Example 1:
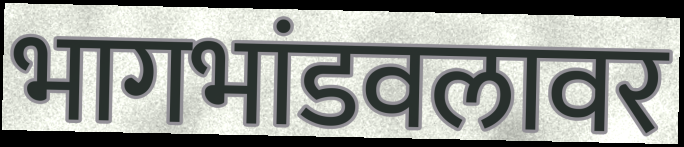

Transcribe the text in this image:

भागभांडवलावर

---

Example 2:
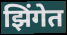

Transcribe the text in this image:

झिंगेत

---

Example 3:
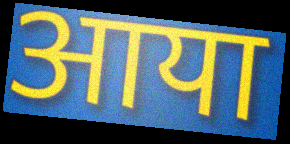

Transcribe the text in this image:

आया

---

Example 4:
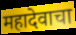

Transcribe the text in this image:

महादेवाचा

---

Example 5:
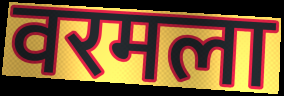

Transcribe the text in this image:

वरमला